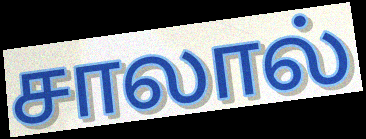
சாலால்